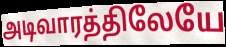
அடிவாரத்திலேயே